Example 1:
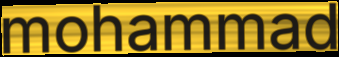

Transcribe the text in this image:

mohammad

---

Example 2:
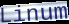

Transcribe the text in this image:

Linum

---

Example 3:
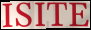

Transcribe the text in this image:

ISITE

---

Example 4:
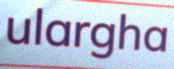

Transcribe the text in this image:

ulargha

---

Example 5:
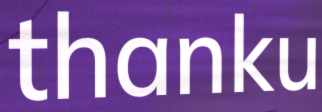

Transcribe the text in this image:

thanku